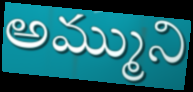
అమ్ముని